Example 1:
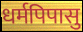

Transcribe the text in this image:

धर्मपिपासु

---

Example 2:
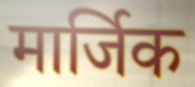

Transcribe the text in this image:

मार्जिक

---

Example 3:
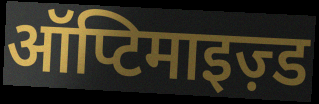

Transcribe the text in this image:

ऑप्टिमाइज़्ड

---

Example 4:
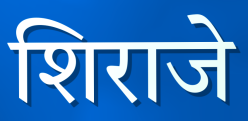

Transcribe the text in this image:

शिराजे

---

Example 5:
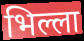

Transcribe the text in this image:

भिल्ला